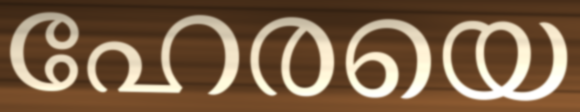
ഹേരയെ